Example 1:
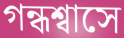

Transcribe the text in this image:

গন্ধশ্বাসে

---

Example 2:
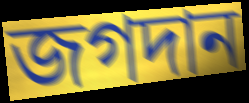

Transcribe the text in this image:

জগদান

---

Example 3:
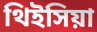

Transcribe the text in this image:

থিইসিয়া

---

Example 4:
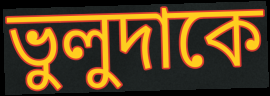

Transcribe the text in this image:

ভুলুদাকে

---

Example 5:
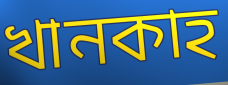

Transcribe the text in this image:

খানকাহ